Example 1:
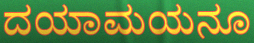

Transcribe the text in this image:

ದಯಾಮಯನೂ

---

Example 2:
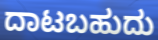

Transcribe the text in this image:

ದಾಟಬಹುದು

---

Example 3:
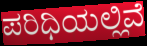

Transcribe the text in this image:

ಪರಿಧಿಯಲ್ಲಿವೆ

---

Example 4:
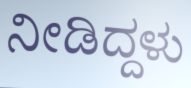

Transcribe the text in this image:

ನೀಡಿದ್ದಳು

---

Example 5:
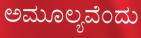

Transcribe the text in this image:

ಅಮೂಲ್ಯವೆಂದು